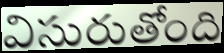
విసురుతోంది